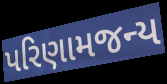
પરિણામજન્ય